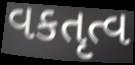
વકતૃત્વ